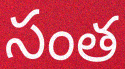
సంత